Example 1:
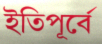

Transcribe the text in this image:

ইতিপূর্বে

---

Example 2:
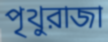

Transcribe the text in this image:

পৃথুরাজা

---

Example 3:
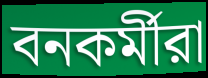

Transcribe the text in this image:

বনকর্মীরা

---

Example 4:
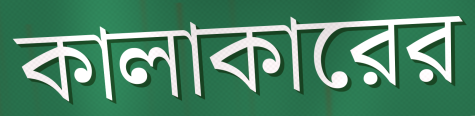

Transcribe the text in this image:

কালাকারের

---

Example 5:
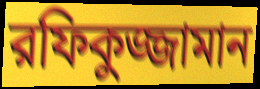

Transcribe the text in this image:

রফিকুজ্জামান